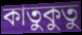
কাতুকুতু